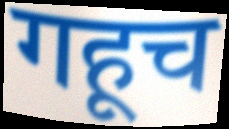
गहूच